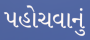
પહોચવાનું